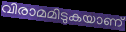
വിരാമമിടുകയാണ്